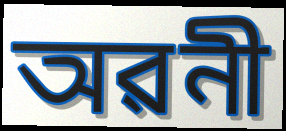
অৱনী